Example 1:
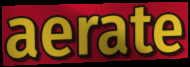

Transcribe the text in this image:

aerate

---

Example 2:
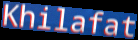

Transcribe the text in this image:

Khilafat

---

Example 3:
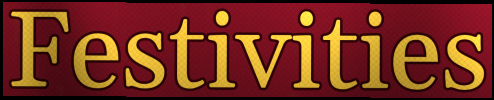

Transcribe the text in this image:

Festivities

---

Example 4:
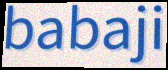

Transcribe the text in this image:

babaji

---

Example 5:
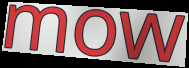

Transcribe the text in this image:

mow